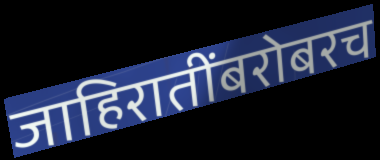
जाहिरातींबरोबरच